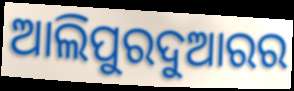
ଆଲିପୁରଦୁଆରର